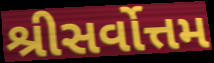
શ્રીસર્વોત્તમ